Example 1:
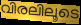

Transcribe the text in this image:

വിരലിലൂടെ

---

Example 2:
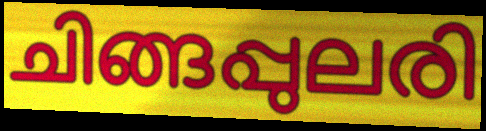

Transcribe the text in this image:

ചിങ്ങപ്പുലരി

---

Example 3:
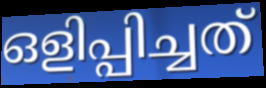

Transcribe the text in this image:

ഒളിപ്പിച്ചത്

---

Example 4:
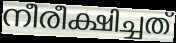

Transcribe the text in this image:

നീരീക്ഷിച്ചത്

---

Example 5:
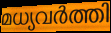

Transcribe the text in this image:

മധ്യവർത്തി